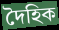
দৈহিক